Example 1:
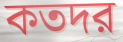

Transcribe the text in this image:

কতদর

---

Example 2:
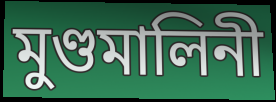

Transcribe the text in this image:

মুণ্ডমালিনী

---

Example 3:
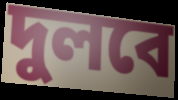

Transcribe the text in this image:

দুলবে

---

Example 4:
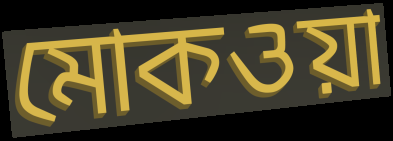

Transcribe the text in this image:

মোকওয়া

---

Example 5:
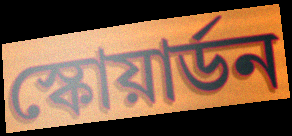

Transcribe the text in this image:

স্কোয়ার্ডন